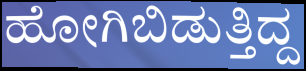
ಹೋಗಿಬಿಡುತ್ತಿದ್ದ